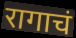
रागाचं